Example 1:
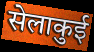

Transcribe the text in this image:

सेलाकुई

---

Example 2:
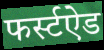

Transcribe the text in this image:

फर्स्टऐड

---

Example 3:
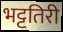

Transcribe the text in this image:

भट्टतिरी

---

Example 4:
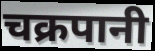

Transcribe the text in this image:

चक्रपानी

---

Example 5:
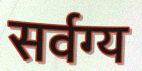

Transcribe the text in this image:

सर्वग्य